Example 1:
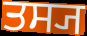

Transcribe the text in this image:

ਤਸ੍ਯ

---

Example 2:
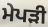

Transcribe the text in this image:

ਮੇਪੜੀ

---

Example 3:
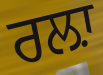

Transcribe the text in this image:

ਰਲ਼ਾ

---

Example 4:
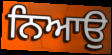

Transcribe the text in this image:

ਨਿਆਉ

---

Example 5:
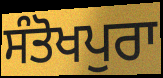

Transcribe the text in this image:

ਸੰਤੋਖਪੁਰਾ